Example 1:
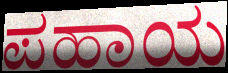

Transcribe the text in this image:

ಪಹಾಯ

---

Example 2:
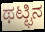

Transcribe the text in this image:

ಥಟ್ಟಿನ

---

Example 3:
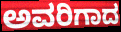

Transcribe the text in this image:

ಅವರಿಗಾದ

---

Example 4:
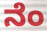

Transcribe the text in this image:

ನೆಂ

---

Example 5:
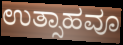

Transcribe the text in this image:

ಉತ್ಸಾಹವೂ